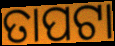
ତାପଟା